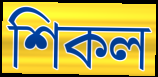
শিকল